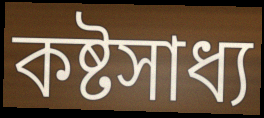
কষ্টসাধ্য